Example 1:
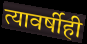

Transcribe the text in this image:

त्यावर्षीही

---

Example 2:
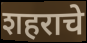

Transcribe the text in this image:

शहराचे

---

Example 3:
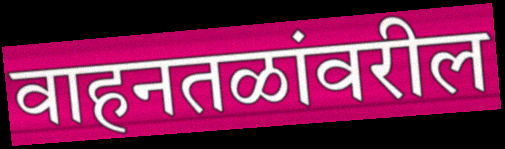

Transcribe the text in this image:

वाहनतळांवरील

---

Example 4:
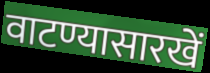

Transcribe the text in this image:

वाटण्यासारखें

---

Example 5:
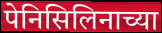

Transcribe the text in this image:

पेनिसिलिनाच्या